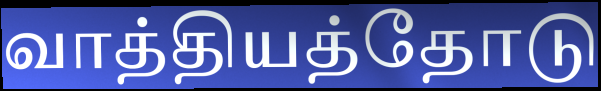
வாத்தியத்தோடு